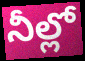
నీల్లో